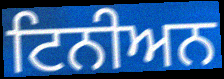
ਟਿਨੀਅਨ